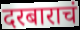
दरबाराचं